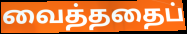
வைத்ததைப்